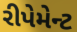
રીપેમેન્ટ